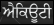
ਐਕਿਊਟੀ